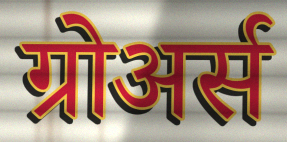
ग्रोअर्स